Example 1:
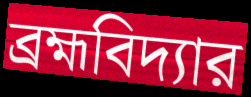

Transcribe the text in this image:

ব্রহ্মবিদ্যার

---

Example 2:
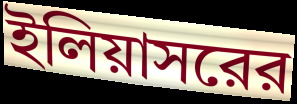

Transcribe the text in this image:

ইলিয়াসরের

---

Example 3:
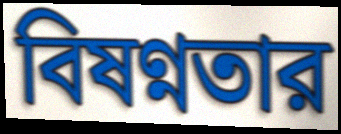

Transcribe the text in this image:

বিষণ্নতার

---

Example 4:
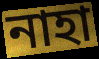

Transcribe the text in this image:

নাহা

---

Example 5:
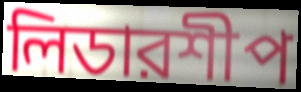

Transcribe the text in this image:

লিডারশীপ